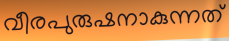
വീരപുരുഷനാകുന്നത്